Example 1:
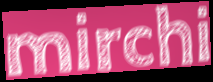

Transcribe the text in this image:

mirchi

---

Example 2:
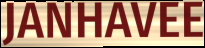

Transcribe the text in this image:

JANHAVEE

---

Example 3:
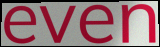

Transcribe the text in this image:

even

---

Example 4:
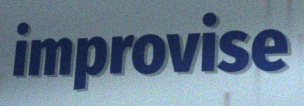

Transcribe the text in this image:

improvise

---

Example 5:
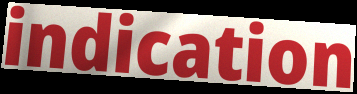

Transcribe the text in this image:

indication